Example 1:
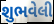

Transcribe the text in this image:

શુભવેલી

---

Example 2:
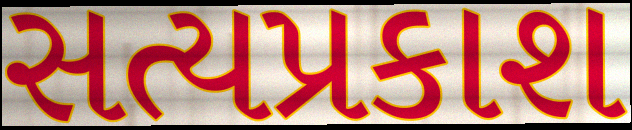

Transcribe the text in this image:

સત્યપ્રકાશ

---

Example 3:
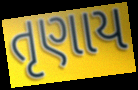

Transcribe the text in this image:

તૃણાય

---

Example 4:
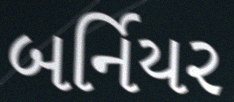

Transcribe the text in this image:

બર્નિયર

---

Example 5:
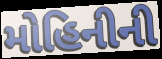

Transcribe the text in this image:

મોહિનીની